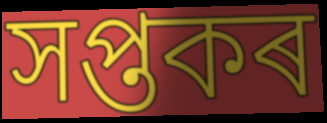
সপ্তকৰ